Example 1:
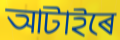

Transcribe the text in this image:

আটাইৰে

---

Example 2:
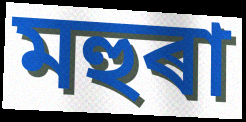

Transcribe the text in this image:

মহুৰা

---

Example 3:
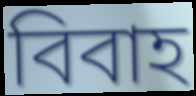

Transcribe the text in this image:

বিবাহ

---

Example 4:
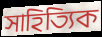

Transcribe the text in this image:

সাহিত্যিক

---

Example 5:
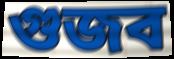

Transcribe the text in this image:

গুজব